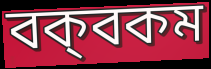
বক্‌বকম